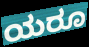
ಯರೂ